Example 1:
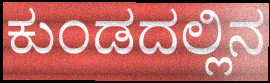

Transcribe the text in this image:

ಕುಂಡದಲ್ಲಿನ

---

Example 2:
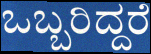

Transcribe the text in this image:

ಒಬ್ಬರಿದ್ದರೆ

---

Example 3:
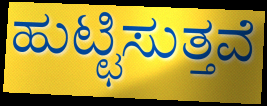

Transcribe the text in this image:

ಹುಟ್ಟಿಸುತ್ತವೆ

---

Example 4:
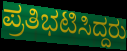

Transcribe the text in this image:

ಪ್ರತಿಭಟಿಸಿದ್ದರು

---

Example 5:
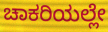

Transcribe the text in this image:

ಚಾಕರಿಯಲ್ಲೇ